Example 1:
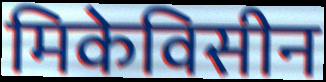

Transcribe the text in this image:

मिकेविसीन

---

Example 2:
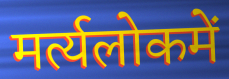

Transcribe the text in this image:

मर्त्यलोकमें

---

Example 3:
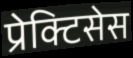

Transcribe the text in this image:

प्रेक्टिसेस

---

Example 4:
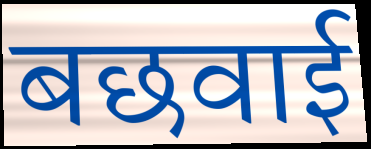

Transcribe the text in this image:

बछवाई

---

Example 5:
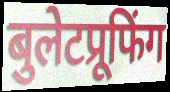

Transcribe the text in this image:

बुलेटप्रूफिंग